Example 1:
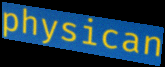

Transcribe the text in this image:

physican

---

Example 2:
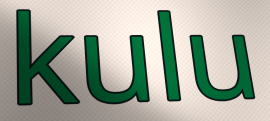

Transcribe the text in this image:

kulu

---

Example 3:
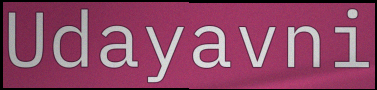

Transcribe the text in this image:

Udayavni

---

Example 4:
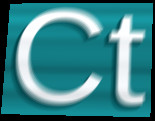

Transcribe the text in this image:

Ct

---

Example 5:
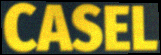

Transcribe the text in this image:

CASEL